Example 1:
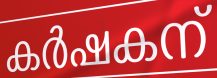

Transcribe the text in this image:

കർഷകന്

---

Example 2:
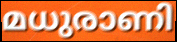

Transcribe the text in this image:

മധുരാണി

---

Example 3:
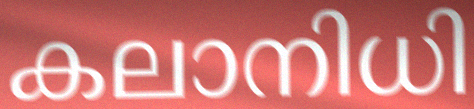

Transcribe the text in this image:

കലാനിധി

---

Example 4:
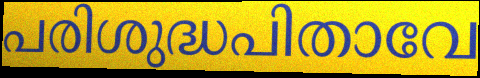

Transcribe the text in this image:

പരിശുദ്ധപിതാവേ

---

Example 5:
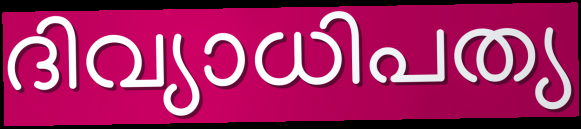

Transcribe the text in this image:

ദിവ്യാധിപത്യ